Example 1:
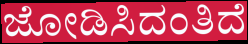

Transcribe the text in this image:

ಜೋಡಿಸಿದಂತಿದೆ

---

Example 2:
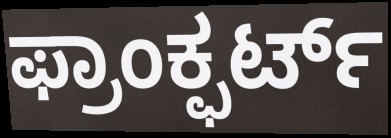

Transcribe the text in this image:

ಫ್ರಾಂಕ್ಫರ್ಟ್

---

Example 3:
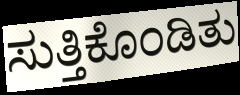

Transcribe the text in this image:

ಸುತ್ತಿಕೊಂಡಿತು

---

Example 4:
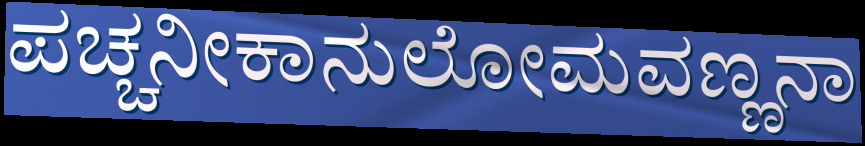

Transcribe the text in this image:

ಪಚ್ಚನೀಕಾನುಲೋಮವಣ್ಣನಾ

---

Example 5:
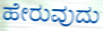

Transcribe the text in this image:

ಹೇರುವುದು